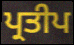
ਪ੍ਰਤੀਪ